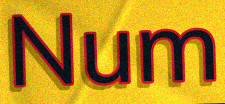
Num